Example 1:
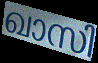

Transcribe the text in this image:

ഖാസി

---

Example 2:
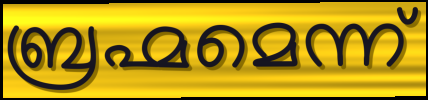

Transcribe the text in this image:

ബ്രഹ്മമെന്ന്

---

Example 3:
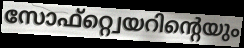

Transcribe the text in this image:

സോഫ്റ്റ്വെയറിന്റെയും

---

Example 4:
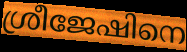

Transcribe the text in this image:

ശ്രീജേഷിനെ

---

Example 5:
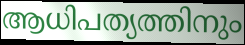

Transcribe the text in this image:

ആധിപത്യത്തിനും